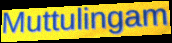
Muttulingam